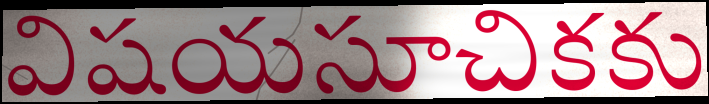
విషయసూచికకు